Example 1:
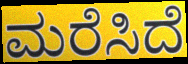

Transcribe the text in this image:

ಮರೆಸಿದೆ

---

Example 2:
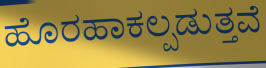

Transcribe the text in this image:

ಹೊರಹಾಕಲ್ಪಡುತ್ತವೆ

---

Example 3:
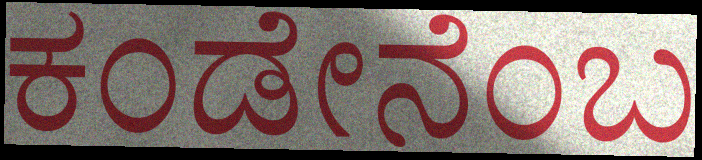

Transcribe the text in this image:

ಕಂಡೇನೆಂಬ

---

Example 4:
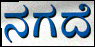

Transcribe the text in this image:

ನಗದೆ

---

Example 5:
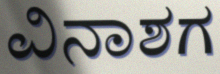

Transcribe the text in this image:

ವಿನಾಶಗ